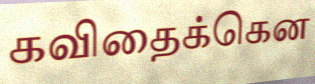
கவிதைக்கென